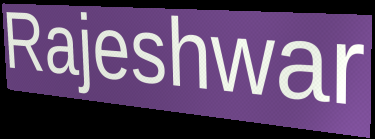
Rajeshwar